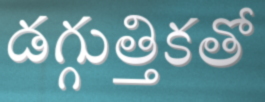
డగ్గుత్తికతో